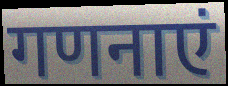
गणनाएं